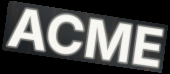
ACME